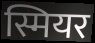
स्मियर